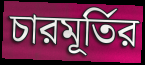
চারমূর্তির